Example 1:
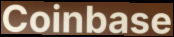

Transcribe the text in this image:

Coinbase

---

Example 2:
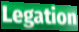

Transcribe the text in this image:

Legation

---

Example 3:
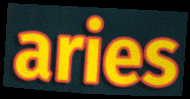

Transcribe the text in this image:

aries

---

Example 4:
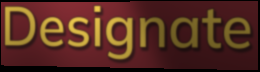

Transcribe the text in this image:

Designate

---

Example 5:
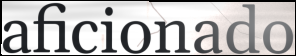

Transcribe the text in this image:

aficionado